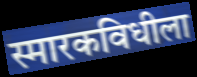
स्मारकविधीला